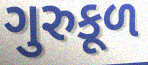
ગુરુકૂળ